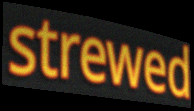
strewed